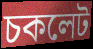
চকলেট